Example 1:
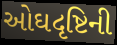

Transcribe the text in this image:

ઓઘદૃષ્ટિની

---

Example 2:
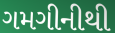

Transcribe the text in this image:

ગમગીનીથી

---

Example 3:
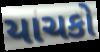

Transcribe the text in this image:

યાચકો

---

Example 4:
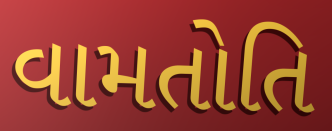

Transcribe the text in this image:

વામતોતિ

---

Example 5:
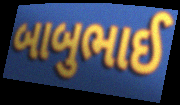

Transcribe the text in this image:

બાબુભાઈ